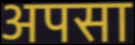
अपसा